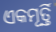
ଏକମୂର୍ତ୍ତି